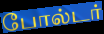
போல்டர்